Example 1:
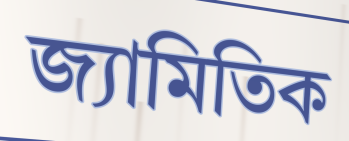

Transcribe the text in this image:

জ্যামিতিক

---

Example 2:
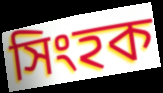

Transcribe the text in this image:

সিংহক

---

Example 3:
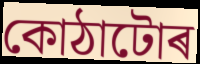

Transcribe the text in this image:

কোঠাটোৰ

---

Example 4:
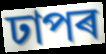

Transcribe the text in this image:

ঢাপৰ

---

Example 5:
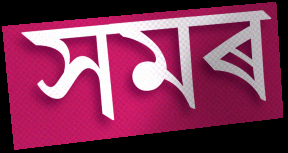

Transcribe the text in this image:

সমৰ